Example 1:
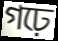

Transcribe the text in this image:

গঢ়ে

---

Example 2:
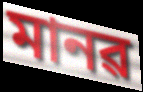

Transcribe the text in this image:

মানৱ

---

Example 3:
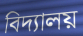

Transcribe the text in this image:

বিদ্যালয়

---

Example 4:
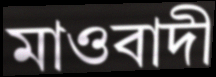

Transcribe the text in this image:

মাওবাদী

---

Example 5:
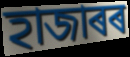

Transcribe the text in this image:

হাজাৰৰ